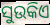
ସୁଉକିଏ